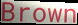
Brown